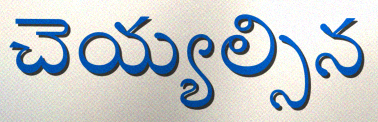
చెయ్యల్సిన